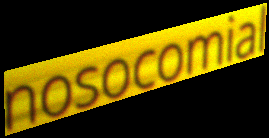
nosocomial